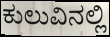
ಕುಲುವಿನಲ್ಲಿ